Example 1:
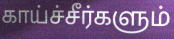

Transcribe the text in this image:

காய்ச்சீர்களும்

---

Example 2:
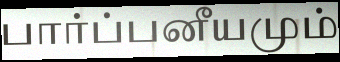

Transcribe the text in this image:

பார்ப்பனீயமும்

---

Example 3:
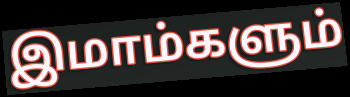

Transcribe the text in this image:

இமாம்களும்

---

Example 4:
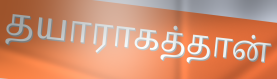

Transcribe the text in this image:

தயாராகத்தான்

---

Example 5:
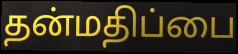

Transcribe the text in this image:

தன்மதிப்பை